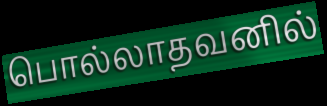
பொல்லாதவனில்